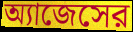
অ্যাজেসের